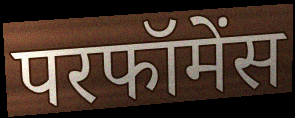
परफॉमेंस